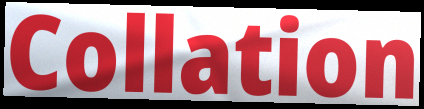
Collation